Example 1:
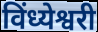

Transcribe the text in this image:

विंध्येश्वरी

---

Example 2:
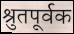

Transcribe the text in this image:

श्रुतपूर्वक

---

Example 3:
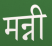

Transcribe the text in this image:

मन्नी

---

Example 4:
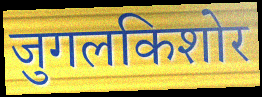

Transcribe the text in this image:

जुगलकिशोर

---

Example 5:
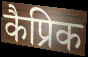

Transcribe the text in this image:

कैप्रिक